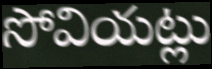
సోవియట్లు